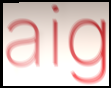
aig